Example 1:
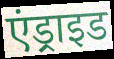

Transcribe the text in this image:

एंड्राइड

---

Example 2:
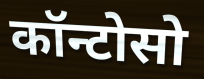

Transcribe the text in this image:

कॉन्टोसो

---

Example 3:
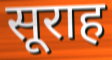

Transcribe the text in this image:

सूराह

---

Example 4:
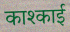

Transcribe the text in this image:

काश्काई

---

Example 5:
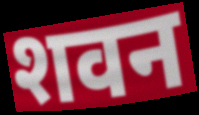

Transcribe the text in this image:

शवन